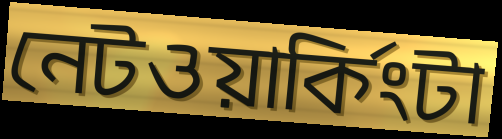
নেটওয়ার্কিংটা